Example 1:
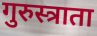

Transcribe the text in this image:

गुरुस्त्राता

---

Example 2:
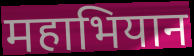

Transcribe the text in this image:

महाभियान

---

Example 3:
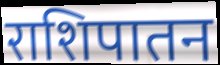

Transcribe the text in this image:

राशिपातन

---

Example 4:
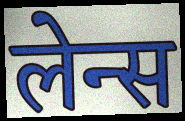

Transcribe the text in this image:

लेन्स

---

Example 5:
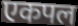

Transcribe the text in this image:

एकपल